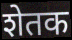
शेतक